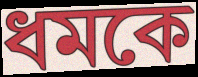
ধমকে